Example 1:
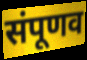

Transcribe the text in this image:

संपूणव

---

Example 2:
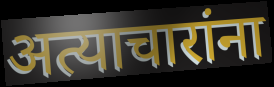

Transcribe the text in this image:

अत्याचारांना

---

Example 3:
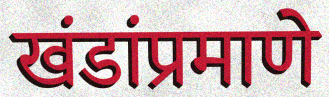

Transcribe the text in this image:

खंडांप्रमाणे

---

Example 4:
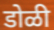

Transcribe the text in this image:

डोळी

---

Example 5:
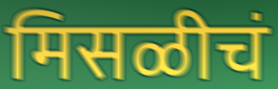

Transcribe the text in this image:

मिसळीचं